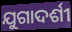
ଯୁଗାଦର୍ଶୀ